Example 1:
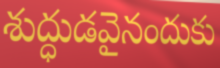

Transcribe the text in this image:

శుద్ధుడవైనందుకు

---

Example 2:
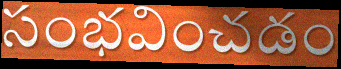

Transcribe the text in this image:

సంభవించడం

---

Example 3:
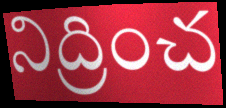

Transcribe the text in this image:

నిద్రించ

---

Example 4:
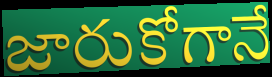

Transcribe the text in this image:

జారుకోగానే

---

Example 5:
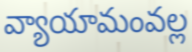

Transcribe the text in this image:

వ్యాయామంవల్ల